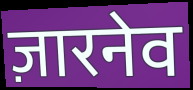
ज़ारनेव